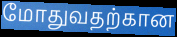
மோதுவதற்கான